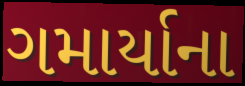
ગમાર્યાના